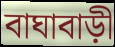
বাঘাবাড়ী